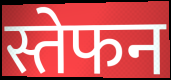
स्तेफन